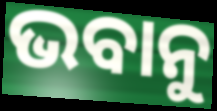
ଭବାନୁ